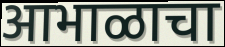
आभाळाचा